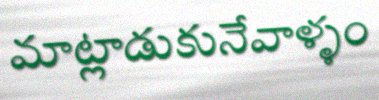
మాట్లాడుకునేవాళ్ళం